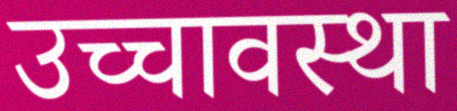
उच्चावस्था